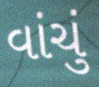
વાંચું